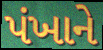
પંખાને